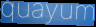
quayum